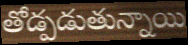
తోడ్పడుతున్నాయి